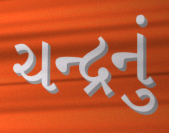
ચન્દ્રનું